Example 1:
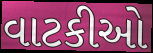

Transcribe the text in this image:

વાટકીઓ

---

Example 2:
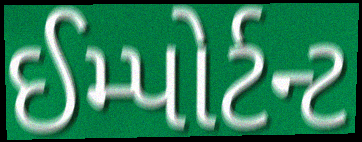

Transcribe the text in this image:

ઈમ્પોર્ટન્ટ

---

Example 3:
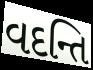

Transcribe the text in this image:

વદન્તિ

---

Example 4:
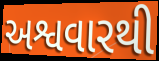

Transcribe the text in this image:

અશ્વવારથી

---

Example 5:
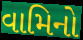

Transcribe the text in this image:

વામિનો